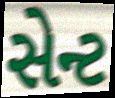
સેન્ટ